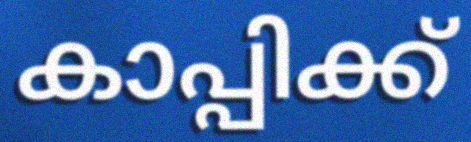
കാപ്പിക്ക്